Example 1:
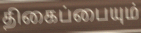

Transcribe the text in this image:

திகைப்பையும்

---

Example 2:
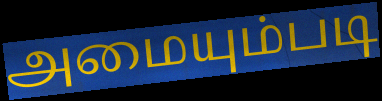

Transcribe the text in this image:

அமையும்படி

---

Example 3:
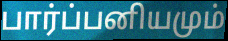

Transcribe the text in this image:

பார்ப்பனியமும்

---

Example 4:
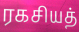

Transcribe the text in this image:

ரகசியத்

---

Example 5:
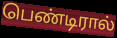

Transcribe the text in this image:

பெண்டிரால்